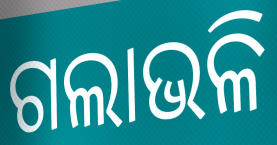
ଗଲାଭଳି